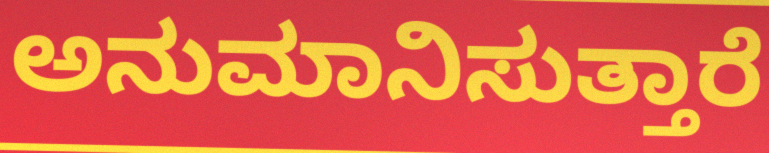
ಅನುಮಾನಿಸುತ್ತಾರೆ